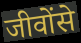
जीवोंसे